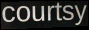
courtsy